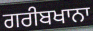
ਗਰੀਬਖਾਨਾ